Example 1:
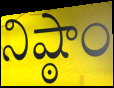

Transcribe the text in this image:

నిష్ఠాం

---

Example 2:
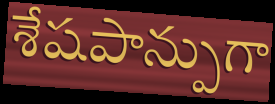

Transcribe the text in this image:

శేషపాన్పుగా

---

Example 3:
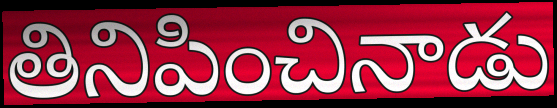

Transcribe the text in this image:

తినిపించినాడు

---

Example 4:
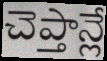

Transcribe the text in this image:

చెప్తాన్లే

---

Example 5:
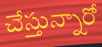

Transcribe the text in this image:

చేస్తున్నారో